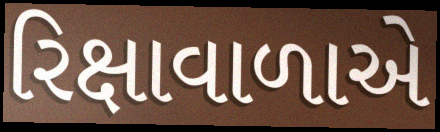
રિક્ષાવાળાએ